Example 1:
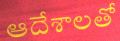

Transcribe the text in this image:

ఆదేశాలతో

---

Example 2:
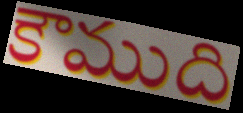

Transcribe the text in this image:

కౌముది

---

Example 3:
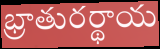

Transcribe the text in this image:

భ్రాతురర్థాయ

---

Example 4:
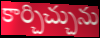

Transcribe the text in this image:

కార్చిచ్చును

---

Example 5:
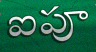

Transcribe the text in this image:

ఐపూ